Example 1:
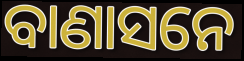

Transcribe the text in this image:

ବାଣାସନେ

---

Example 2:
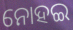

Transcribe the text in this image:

ନୋହଇ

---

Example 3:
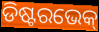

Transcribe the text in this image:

ଡିଷ୍ଟରଭେକ୍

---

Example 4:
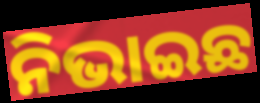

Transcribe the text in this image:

ନିଭାଇଛ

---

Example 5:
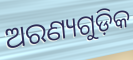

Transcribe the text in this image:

ଅରଣ୍ୟଗୁଡ଼ିକ